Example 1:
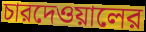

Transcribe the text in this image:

চারদেওয়ালের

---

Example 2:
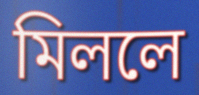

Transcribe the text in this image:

মিললে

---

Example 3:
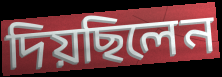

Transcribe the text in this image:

দিয়ছিলেন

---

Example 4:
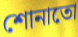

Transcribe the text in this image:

শোনাতো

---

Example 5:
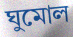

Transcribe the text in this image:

ঘুমোল